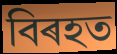
বিৰহত